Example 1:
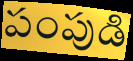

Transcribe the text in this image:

పంపుడి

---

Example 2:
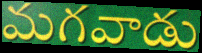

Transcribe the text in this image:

మగవాడు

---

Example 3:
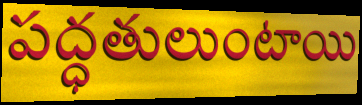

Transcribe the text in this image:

పద్ధతులుంటాయి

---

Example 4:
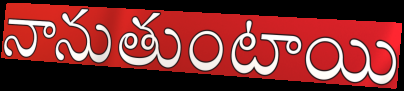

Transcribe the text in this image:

నానుతుంటాయి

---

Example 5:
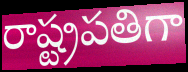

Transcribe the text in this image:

రాష్ట్రపతిగా